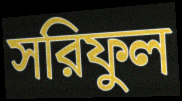
সরিফুল